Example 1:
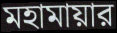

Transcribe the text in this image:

মহামায়ার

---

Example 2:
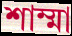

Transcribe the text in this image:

শাম্মা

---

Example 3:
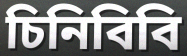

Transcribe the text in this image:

চিনিবিবি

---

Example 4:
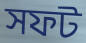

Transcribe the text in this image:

সফট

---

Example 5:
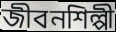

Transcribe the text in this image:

জীবনশিল্পী